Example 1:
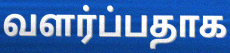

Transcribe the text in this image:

வளர்ப்பதாக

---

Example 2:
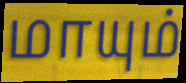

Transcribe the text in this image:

மாயும்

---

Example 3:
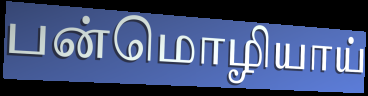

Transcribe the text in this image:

பன்மொழியாய்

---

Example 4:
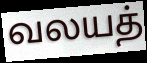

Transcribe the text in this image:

வலயத்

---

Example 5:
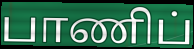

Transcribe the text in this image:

பாணிப்